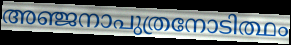
അഞ്ജനാപുത്രനോടിത്ഥം